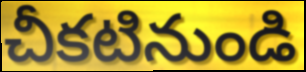
చీకటినుండి